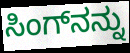
ಸಿಂಗ್‌ನನ್ನು